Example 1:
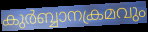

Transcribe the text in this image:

കുർബ്ബാനക്രമവും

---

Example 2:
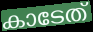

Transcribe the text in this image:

കാടേത്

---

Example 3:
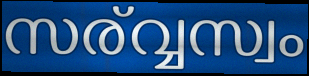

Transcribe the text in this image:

സര്വ്വസ്വം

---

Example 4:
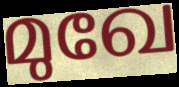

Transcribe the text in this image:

മുഖേ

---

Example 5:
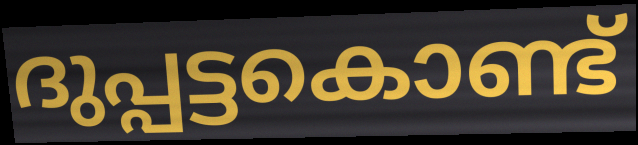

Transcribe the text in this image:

ദുപ്പട്ടകൊണ്ട്